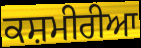
ਕਸ਼ਮੀਰੀਆ